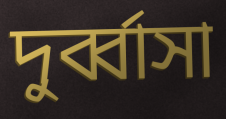
দুর্ব্বাসা